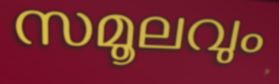
സമൂലവും